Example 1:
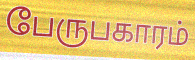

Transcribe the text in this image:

பேருபகாரம்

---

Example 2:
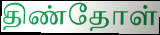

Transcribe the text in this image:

திண்தோள்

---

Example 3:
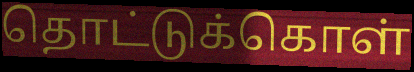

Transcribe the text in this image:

தொட்டுக்கொள்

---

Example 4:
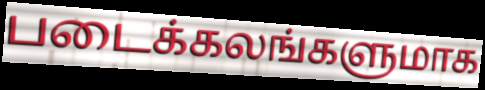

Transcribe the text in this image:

படைக்கலங்களுமாக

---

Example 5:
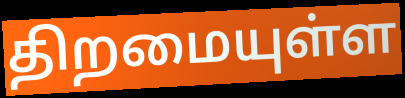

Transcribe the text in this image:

திறமையுள்ள